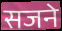
सजने